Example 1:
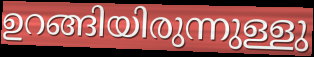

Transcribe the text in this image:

ഉറങ്ങിയിരുന്നുള്ളു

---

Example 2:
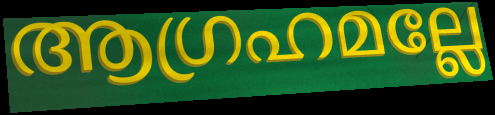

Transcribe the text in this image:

ആഗ്രഹമല്ലേ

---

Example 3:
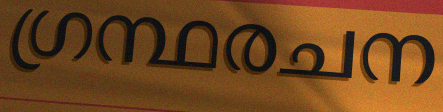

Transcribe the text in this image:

ഗ്രന്ഥരചന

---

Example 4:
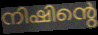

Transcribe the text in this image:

നിഷിന്റെ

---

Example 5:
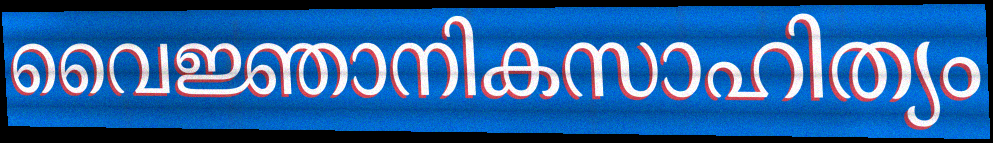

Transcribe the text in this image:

വൈജ്ഞാനികസാഹിത്യം